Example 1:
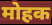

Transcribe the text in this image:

मोहक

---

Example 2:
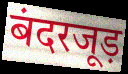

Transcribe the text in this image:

बंदरजूड़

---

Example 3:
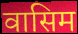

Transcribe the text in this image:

वासिम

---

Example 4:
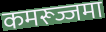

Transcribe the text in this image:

कमरूज्जमा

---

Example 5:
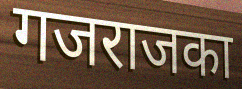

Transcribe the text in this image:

गजराजका